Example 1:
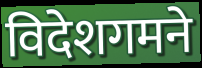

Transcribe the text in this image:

विदेशगमने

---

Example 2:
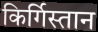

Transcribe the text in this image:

किर्गिस्‍तान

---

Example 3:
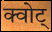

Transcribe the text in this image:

क्वोट्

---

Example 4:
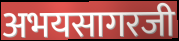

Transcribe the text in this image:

अभयसागरजी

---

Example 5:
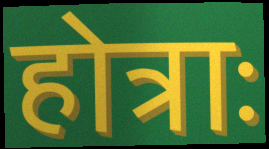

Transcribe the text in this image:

होत्राः